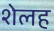
शेलह